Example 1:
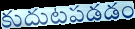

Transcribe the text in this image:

కుదుటపడడం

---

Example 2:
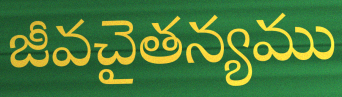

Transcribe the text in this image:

జీవచైతన్యము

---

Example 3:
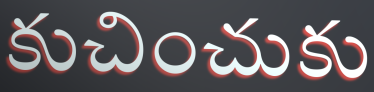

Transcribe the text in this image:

కుచించుకు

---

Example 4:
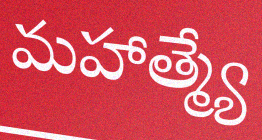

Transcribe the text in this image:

మహాత్మ్యే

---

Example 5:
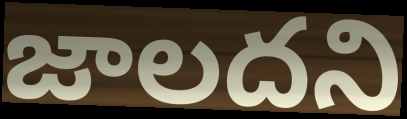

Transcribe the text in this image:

జాలదని